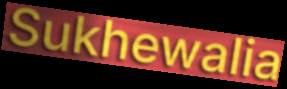
Sukhewalia